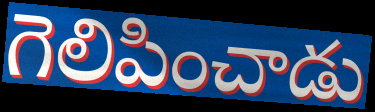
గెలిపించాడు